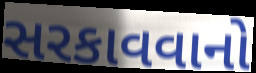
સરકાવવાનો